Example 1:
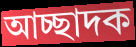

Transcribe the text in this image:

আচ্ছাদক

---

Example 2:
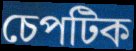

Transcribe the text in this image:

চেপটিক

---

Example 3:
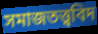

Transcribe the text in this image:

সমাজতত্ত্ববিদ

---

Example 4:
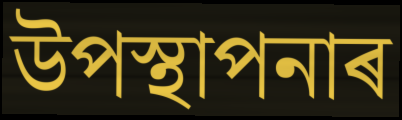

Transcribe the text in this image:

উপস্থাপনাৰ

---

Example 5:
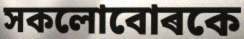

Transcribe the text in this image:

সকলোবোৰকে